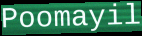
Poomayil